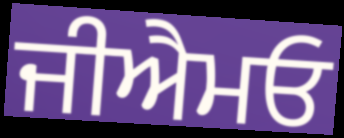
ਜੀਐਮਓ